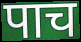
पाच